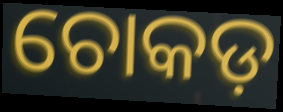
ଚୋକଡ଼